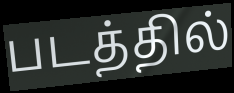
படத்தில்